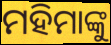
ମହିମାଙ୍କୁ